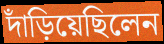
দাঁড়িয়েছিলেন